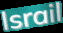
Israil